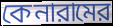
কেনারামের